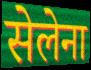
सेलेना